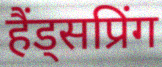
हैंड्सप्रिंग